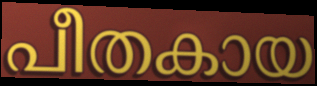
പീതകായ